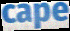
cape